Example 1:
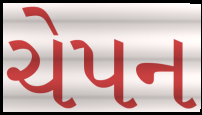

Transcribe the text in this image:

ચેપન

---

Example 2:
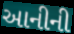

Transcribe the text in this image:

આનીની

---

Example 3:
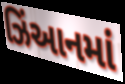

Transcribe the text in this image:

ઝિંઆનમાં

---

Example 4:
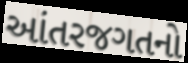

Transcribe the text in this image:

આંતરજગતનો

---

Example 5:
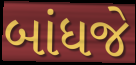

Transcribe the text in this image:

બાંધજે